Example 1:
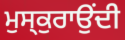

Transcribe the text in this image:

ਮੁਸ੍ਕੁਰਾਉਂਦੀ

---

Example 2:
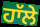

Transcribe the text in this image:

ਹਾੱਲੇ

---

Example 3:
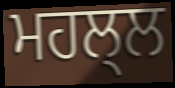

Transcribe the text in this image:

ਮਹਲ੍ਲ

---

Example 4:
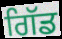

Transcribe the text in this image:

ਗਿੱਡ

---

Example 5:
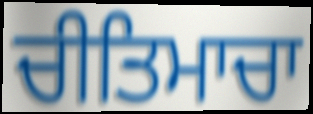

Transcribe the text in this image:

ਚੀਤਿਮਾਚਾ